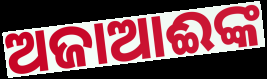
ଅଜାଆଈଙ୍କ